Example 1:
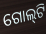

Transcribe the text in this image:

ଗୋଲ୍‍ଟି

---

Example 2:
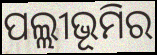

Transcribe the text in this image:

ପଲ୍ଲୀଭୂମିର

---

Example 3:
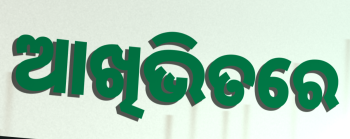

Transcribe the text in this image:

ଆଖିଭିତରେ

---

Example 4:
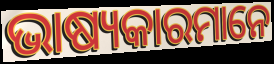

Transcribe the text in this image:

ଭାଷ୍ୟକାରମାନେ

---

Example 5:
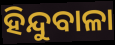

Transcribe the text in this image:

ହିନ୍ଦୁବାଳା